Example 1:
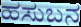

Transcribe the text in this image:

ಹಸುಬನ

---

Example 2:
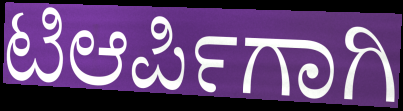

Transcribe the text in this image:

ಟಿಆರ್ಪಿಗಾಗಿ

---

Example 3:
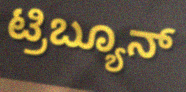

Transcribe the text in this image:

ಟ್ರಿಬ್ಯೂನ್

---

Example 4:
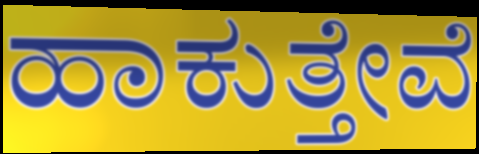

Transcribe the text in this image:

ಹಾಕುತ್ತೇವೆ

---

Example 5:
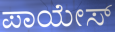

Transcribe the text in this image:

ಪಾಯೇಸ್